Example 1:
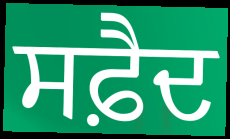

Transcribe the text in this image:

ਸਫ਼ੈਦ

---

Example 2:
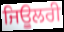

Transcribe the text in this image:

ਜਿਊਲਰੀ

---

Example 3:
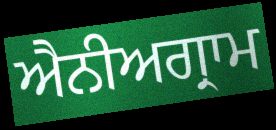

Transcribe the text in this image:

ਐਨੀਅਗ੍ਰਾਮ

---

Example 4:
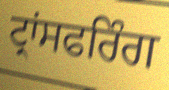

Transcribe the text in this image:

ਟ੍ਰਾਂਸਫਰਿੰਗ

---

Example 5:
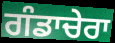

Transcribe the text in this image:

ਗੰਡਾਚੇਰਾ